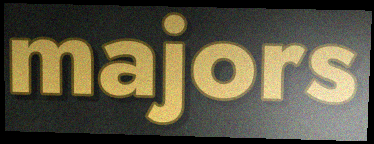
majors